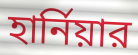
হার্নিয়ার